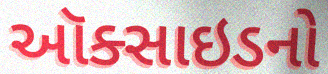
ઑક્સાઇડનો